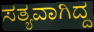
ಸತ್ಯವಾಗಿದ್ದ